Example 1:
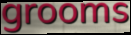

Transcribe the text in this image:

grooms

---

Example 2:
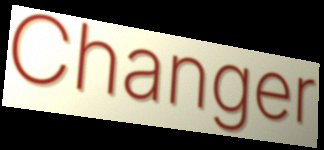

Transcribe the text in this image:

Changer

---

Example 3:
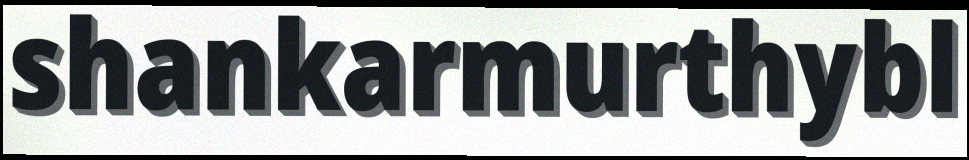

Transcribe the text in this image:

shankarmurthybl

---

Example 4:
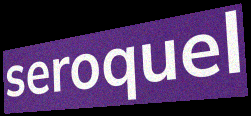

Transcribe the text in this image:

seroquel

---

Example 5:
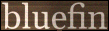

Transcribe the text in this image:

bluefin